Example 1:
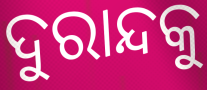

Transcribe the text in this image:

ଦୁରାନ୍ଦକୁ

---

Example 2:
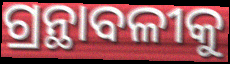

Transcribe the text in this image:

ଗ୍ରନ୍ଥାବଳୀକୁ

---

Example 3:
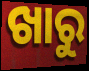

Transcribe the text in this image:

ଖାରୁ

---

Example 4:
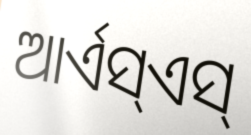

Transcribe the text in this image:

ଆର୍ଏସ୍ଏସ୍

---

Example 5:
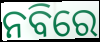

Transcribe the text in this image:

ନବିରେ